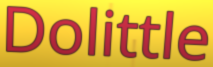
Dolittle